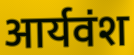
आर्यवंश